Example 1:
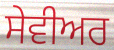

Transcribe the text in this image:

ਸੇਵੀਅਰ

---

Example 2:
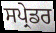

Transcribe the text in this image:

ਸਪ੍ਰੇਡਰ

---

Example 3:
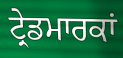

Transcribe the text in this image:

ਟ੍ਰੇਡਮਾਰਕਾਂ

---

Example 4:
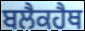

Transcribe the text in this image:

ਬਲੈਕਹੈਥ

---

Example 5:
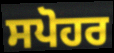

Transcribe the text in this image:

ਸਪੋਹਰ